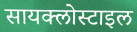
सायक्लोस्टाइल